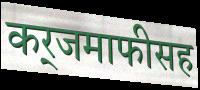
कर्जमाफीसह